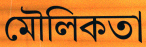
মৌলিকতা